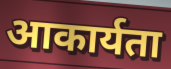
आकार्यता